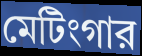
মেটিংগার